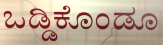
ಒಡ್ಡಿಕೊಂಡೂ